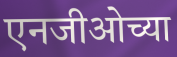
एनजीओच्या